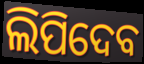
ଲିପିଦେବ